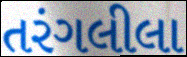
તરંગલીલા